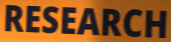
RESEARCH